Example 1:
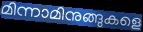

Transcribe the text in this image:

മിന്നാമിനുങ്ങുകളെ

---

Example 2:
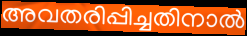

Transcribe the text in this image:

അവതരിപ്പിച്ചതിനാൽ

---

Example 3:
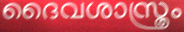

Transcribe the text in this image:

ദൈവശാസ്ത്രം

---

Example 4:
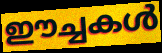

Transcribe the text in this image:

ഈച്ചകൾ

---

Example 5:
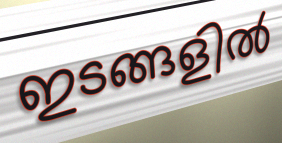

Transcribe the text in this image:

ഇടങ്ങളിൽ